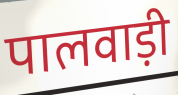
पालवाड़ी